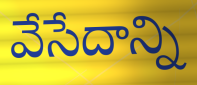
వేసేదాన్ని